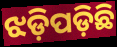
ଝଡ଼ିପଡ଼ିଛି